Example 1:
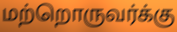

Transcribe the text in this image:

மற்றொருவர்க்கு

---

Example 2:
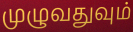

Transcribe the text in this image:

முழுவதுவும்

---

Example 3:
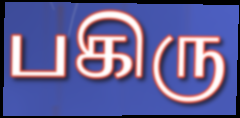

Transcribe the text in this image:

பகிரு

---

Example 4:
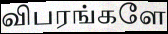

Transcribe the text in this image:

விபரங்களே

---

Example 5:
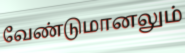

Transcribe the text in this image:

வேண்டுமானலும்